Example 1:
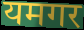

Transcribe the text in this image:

यमगर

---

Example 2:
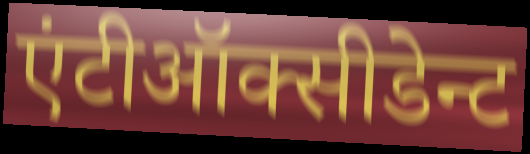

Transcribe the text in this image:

एंटीऑक्सीडेन्ट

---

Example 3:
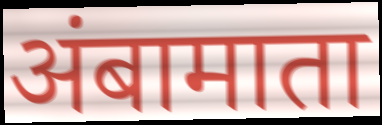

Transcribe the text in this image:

अंबामाता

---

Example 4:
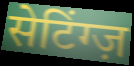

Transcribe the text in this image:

सेटिंग्ज़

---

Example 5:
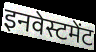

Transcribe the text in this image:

इनवेस्‍टमेंट